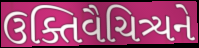
ઉક્તિવૈચિત્ર્યને